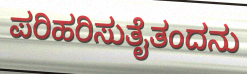
ಪರಿಹರಿಸುತೈತಂದನು